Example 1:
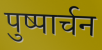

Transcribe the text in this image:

पुष्पार्चन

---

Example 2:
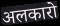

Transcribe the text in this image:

अलकारो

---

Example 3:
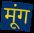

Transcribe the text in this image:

मूंग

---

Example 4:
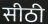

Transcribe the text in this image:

सीठी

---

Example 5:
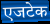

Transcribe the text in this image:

एजटेक